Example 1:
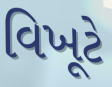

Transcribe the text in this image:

વિખૂટે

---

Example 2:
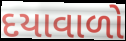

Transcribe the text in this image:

દયાવાળો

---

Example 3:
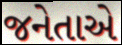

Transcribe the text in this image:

જનેતાએ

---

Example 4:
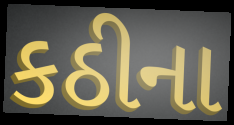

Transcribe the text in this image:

કઠીના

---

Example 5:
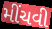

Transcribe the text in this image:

મીંચવી